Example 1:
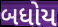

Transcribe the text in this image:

બધોય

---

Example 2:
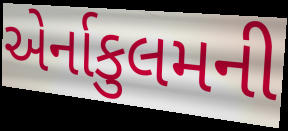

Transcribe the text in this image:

એર્નાકુલમની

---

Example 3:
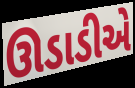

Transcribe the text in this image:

ઊડાડીએ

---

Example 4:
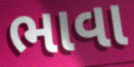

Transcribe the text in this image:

ભાવા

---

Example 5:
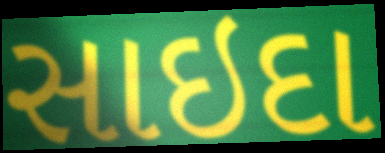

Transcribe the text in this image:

સાઇદા